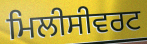
ਮਿਲੀਸੀਵਰਟ